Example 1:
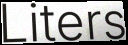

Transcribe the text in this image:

Liters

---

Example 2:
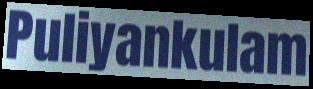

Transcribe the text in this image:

Puliyankulam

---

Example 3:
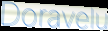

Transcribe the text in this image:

Doravelu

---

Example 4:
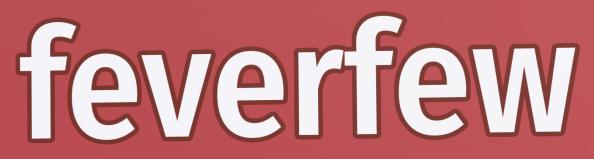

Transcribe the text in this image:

feverfew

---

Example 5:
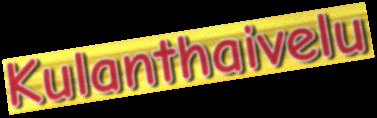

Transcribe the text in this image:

Kulanthaivelu